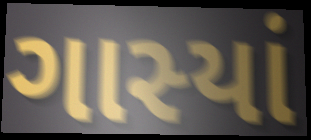
ગાસ્યાં